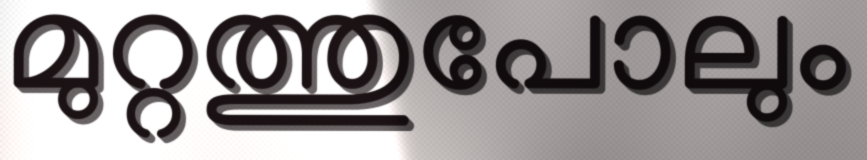
മുറ്റത്തുപോലും